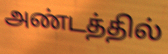
அண்டத்தில்